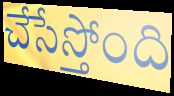
చేసేస్తోంది